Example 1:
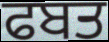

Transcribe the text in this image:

ਫਬਤ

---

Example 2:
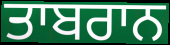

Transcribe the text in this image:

ਤਾਬਰਾਨ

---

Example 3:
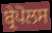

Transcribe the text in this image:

ਬ੍ਰੇਪੋਲਸ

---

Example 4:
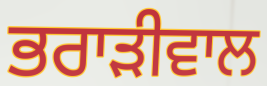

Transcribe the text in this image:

ਭਰਾੜੀਵਾਲ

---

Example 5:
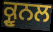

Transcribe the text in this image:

ਕ੍ਰੂਨਲ